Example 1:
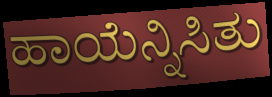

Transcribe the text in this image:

ಹಾಯೆನ್ನಿಸಿತು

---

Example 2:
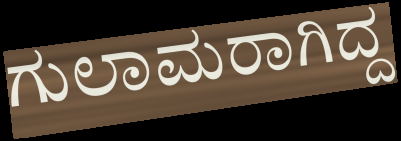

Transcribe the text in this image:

ಗುಲಾಮರಾಗಿದ್ದ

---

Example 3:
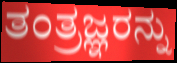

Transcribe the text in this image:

ತಂತ್ರಜ್ಞರನ್ನು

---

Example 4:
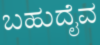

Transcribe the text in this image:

ಬಹುದೈವ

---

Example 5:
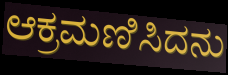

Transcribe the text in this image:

ಆಕ್ರಮಣಿಸಿದನು